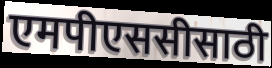
एमपीएससीसाठी